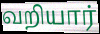
வறியார்